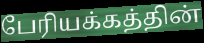
பேரியக்கத்தின்